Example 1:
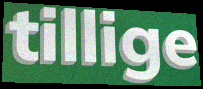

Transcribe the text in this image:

tillige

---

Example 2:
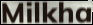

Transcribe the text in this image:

Milkha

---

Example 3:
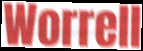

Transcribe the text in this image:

Worrell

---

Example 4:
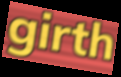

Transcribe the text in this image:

girth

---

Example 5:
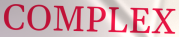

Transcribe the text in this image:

COMPLEX